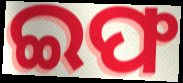
ଇଫ